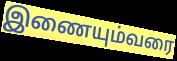
இணையும்வரை